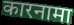
कारनामा